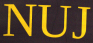
NUJ